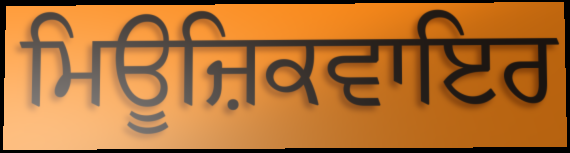
ਮਿਊਜ਼ਿਕਵਾਇਰ